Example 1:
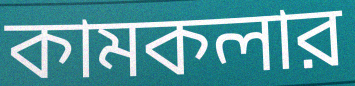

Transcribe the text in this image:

কামকলার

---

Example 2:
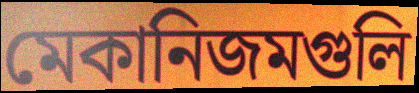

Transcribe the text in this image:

মেকানিজমগুলি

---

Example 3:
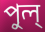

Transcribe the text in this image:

পুল্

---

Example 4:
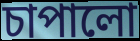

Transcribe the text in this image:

চাপালো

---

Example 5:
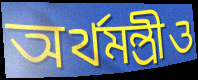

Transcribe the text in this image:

অর্থমন্ত্রীও